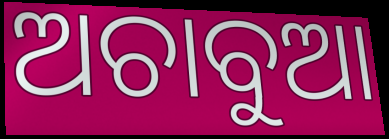
ଅଚାବୁଆ